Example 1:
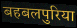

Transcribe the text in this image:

बहबलपुरिया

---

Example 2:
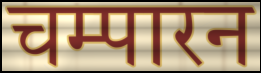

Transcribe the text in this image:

चम्पारन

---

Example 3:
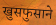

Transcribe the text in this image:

खुसफुसाने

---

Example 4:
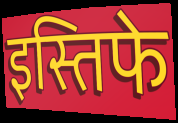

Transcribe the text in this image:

इस्तिफे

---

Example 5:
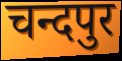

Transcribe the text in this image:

चन्दपुर